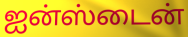
ஐன்ஸ்டைன்